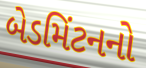
બેડમિંટનનો